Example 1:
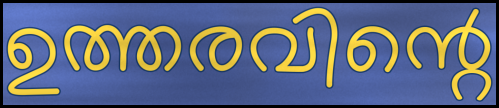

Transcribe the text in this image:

ഉത്തരവിന്റെ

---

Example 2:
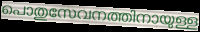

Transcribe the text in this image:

പൊതുസേവനത്തിനായുള്ള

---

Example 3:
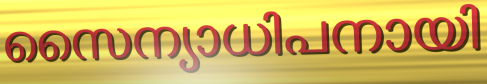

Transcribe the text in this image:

സൈന്യാധിപനായി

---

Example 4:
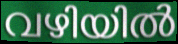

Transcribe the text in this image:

വഴിയിൽ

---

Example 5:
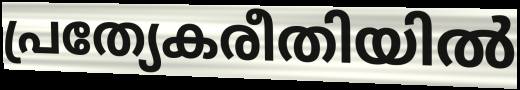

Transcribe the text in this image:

പ്രത്യേകരീതിയിൽ